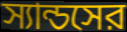
স্যান্ডসের